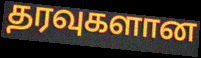
தரவுகளான